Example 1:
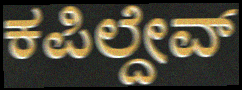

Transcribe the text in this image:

ಕಪಿಲ್ದೇವ್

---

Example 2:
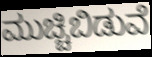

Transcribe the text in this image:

ಮುಚ್ಚಿಬಿಡುವೆ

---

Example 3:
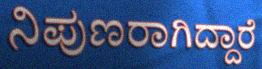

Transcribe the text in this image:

ನಿಪುಣರಾಗಿದ್ದಾರೆ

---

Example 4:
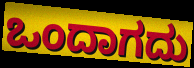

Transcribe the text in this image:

ಒಂದಾಗದು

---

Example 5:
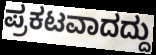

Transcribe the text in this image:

ಪ್ರಕಟವಾದದ್ದು